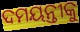
ଦମୟନ୍ତୀକୁ